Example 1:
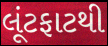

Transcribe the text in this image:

લૂંટફાટથી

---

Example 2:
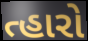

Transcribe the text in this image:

ત્હારો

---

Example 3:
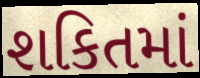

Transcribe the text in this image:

શકિતમાં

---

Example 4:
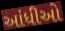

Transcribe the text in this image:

આંધીઓ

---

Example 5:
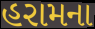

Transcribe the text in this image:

હરામના